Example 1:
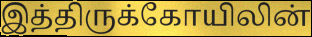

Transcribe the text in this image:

இத்திருக்கோயிலின்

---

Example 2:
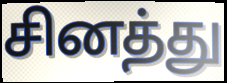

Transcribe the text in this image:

சினத்து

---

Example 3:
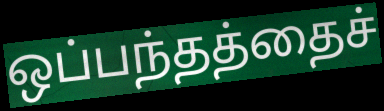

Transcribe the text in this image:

ஒப்பந்தத்தைச்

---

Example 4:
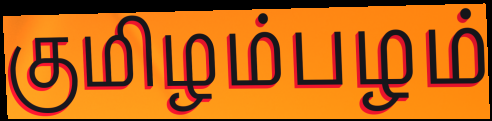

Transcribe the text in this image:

குமிழம்பழம்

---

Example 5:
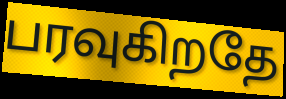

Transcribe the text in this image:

பரவுகிறதே